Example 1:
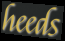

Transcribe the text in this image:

heeds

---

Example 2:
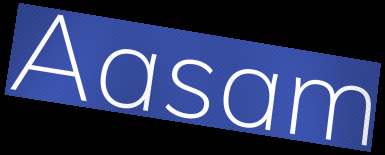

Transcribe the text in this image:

Aasam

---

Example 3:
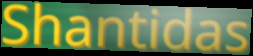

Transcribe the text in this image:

Shantidas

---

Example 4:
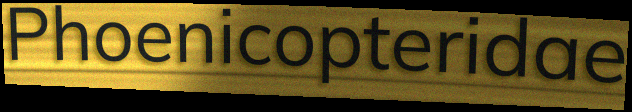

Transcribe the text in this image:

Phoenicopteridae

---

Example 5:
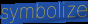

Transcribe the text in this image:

symbolize